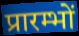
प्रारम्भों